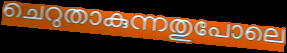
ചെറുതാകുന്നതുപോലെ